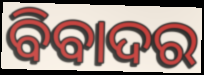
ବିବାଦର